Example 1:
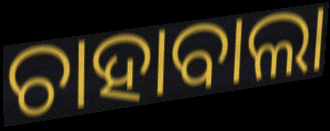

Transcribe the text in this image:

ଚାହାବାଲା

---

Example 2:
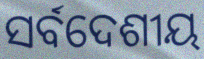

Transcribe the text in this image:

ସର୍ବଦେଶୀୟ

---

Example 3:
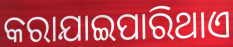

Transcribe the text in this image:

କରାଯାଇପାରିଥାଏ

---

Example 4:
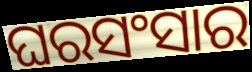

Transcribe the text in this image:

ଘରସଂସାର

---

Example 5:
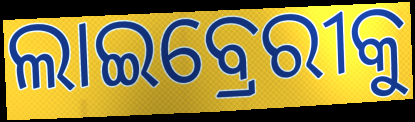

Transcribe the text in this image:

ଲାଇବ୍ରେରୀକୁ